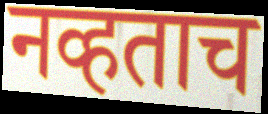
नव्हताच